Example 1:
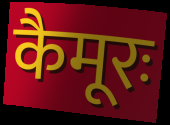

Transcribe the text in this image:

कैमूरः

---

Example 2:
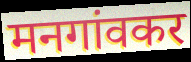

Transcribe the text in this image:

मनगांवकर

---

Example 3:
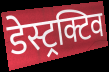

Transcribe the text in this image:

डेस्ट्रक्टिव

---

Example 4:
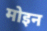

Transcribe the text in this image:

मोइन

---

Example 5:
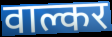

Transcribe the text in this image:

वाल्कर